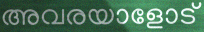
അവരയാളോട്